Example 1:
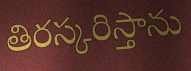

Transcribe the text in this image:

తిరస్కరిస్తాను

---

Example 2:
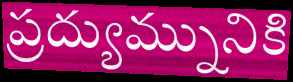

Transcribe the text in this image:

ప్రద్యుమ్నునికి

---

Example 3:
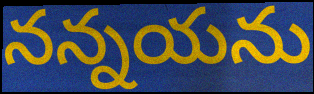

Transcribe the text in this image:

నన్నయను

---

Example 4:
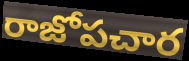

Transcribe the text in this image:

రాజోపచార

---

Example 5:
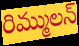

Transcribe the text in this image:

రిమ్ములన్